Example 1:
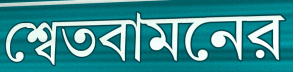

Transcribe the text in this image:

শ্বেতবামনের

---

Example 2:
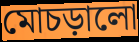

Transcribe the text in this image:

মোচড়ালো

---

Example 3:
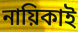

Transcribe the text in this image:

নায়িকাই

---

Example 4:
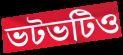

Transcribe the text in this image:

ভটভটিও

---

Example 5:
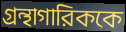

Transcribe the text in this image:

গ্রন্থাগারিককে